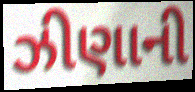
ઝીણાની